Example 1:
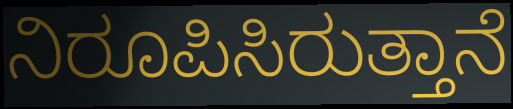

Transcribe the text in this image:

ನಿರೂಪಿಸಿರುತ್ತಾನೆ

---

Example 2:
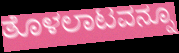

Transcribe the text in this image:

ತೊಳಲಾಟವನ್ನೂ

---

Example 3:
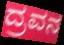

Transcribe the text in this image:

ದ್ರವನ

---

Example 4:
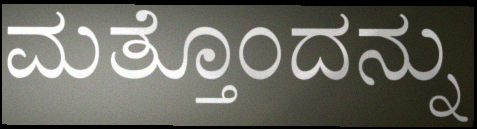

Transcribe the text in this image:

ಮತ್ತೊಂದನ್ನು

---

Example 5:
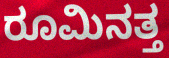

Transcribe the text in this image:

ರೂಮಿನತ್ತ